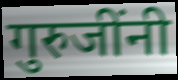
गुरुजींनी